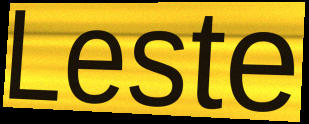
Leste